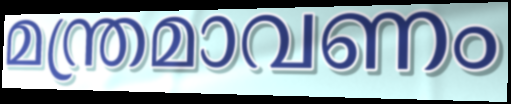
മന്ത്രമാവണം